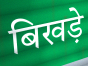
बिखड़े